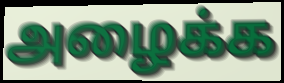
அழைக்க